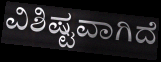
ವಿಶಿಷ್ಟವಾಗಿದೆ